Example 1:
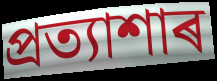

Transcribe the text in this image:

প্ৰত্যাশাৰ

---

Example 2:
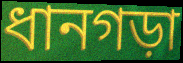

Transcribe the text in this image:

ধানগড়া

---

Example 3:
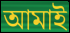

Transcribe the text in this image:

আমাই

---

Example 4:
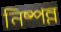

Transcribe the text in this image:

নিষ্পন্ন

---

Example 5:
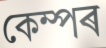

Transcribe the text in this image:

কেম্পৰ